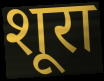
शूरा